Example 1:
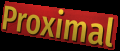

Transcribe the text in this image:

Proximal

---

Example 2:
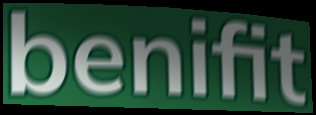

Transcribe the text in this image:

benifit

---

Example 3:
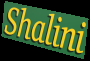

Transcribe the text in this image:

Shalini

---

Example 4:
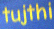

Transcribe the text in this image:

tujthi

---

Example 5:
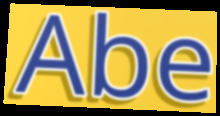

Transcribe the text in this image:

Abe